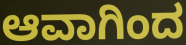
ಆವಾಗಿಂದ